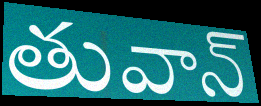
తువాన్